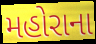
મહોરાના